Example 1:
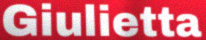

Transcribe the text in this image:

Giulietta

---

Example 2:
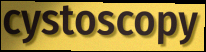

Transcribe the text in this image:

cystoscopy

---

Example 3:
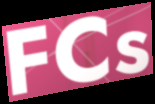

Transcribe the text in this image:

FCs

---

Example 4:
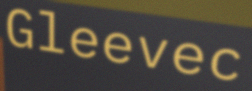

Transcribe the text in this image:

Gleevec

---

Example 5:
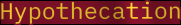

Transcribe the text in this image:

Hypothecation